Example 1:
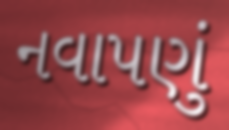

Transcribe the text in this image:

નવાપણું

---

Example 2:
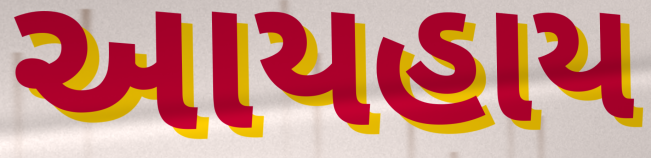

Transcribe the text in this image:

આયહાય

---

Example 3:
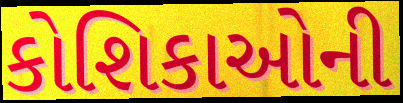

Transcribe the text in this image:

કોશિકાઓની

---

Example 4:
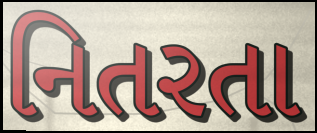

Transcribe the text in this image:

નિતરતા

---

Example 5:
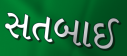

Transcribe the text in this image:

સતબાઈ